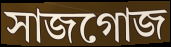
সাজগোজ